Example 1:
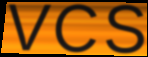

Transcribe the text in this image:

vcs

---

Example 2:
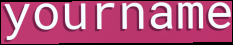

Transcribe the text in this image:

yourname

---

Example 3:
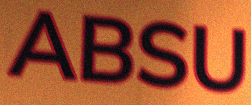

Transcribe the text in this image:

ABSU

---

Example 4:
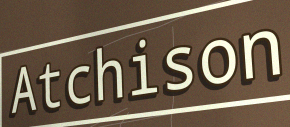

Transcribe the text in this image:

Atchison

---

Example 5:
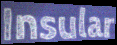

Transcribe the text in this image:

Insular